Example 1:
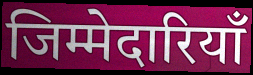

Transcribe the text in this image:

जिम्मेदारियाँ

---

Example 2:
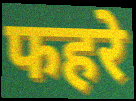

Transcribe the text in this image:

फहरे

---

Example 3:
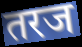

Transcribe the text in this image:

तरज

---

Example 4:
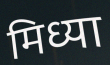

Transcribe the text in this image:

मिध्या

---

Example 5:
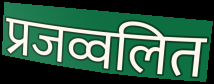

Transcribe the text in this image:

प्रजव्वलित